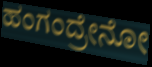
ಹಂಗಂದ್ರೇನೋ